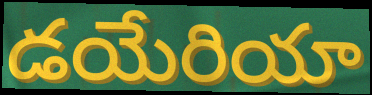
డయేరియా